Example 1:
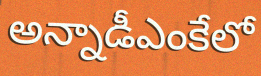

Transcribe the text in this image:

అన్నాడీఎంకేలో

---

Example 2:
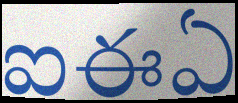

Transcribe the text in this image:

ఐఈఏ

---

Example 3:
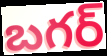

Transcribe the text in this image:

బగర్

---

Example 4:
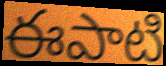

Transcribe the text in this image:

ఈపాటి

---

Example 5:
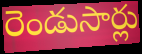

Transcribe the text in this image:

రెండుసార్లు